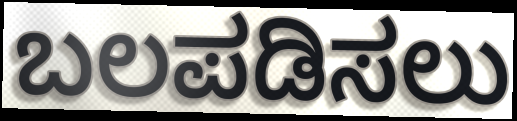
ಬಲಪಡಿಸಲು